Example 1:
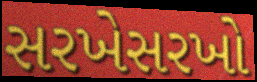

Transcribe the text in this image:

સરખેસરખો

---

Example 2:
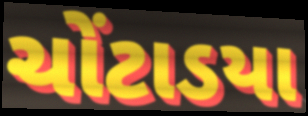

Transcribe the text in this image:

ચોંટાડયા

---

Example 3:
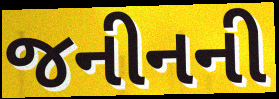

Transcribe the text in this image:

જનીનની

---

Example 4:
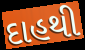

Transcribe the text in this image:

દાહથી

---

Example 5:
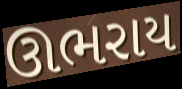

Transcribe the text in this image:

ઊભરાય